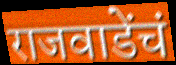
राजवाडेंचं